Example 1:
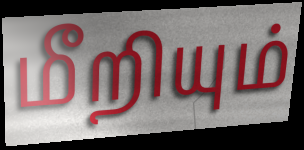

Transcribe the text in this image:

மீறியும்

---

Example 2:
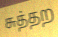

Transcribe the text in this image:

சுத்தற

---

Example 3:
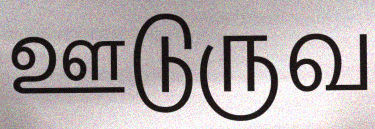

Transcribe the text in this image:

ஊடுருவ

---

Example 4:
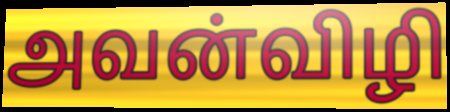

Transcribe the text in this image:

அவன்விழி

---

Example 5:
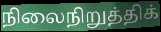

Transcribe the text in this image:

நிலைநிறுத்திக்